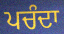
ਪਚੰਦਾ